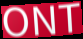
ONT